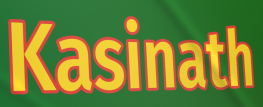
Kasinath